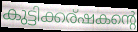
കുട്ടിക്കര്ഷകന്റെ